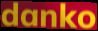
danko